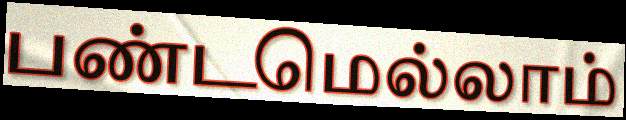
பண்டமெல்லாம்